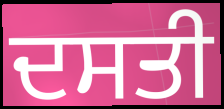
ਦਸਤੀ